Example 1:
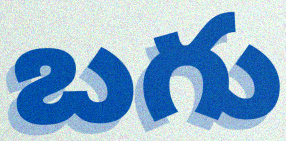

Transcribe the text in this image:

బగు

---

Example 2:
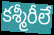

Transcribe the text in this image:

కశ్మీరీలే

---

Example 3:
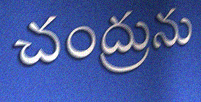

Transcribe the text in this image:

చంద్రును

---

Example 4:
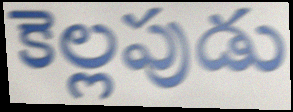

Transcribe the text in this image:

కెల్లపుడు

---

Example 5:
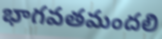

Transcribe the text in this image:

భాగవతమందలి